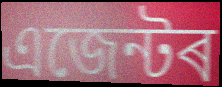
এজেন্টৰ